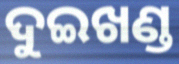
ଦୁଇଖଣ୍ଡ